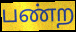
பண்ற